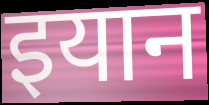
इयान